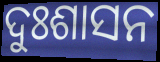
ଦୁଃଶାସନ